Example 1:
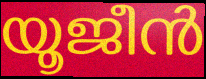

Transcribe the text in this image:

യൂജീൻ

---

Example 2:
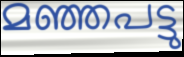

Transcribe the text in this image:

മഞ്ഞപട്ടു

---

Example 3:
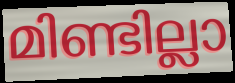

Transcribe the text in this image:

മിണ്ടില്ലാ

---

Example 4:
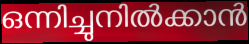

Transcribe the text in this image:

ഒന്നിച്ചുനിൽക്കാൻ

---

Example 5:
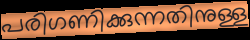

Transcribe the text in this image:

പരിഗണിക്കുന്നതിനുള്ള